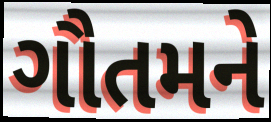
ગૌતમને